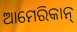
ଆମେରିକାନ୍